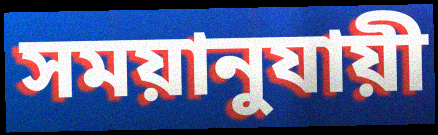
সময়ানুযায়ী